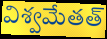
విశ్వమేతత్